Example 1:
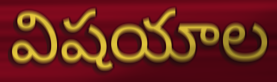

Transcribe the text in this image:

విషయాల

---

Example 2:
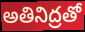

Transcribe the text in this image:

అతినిద్రతో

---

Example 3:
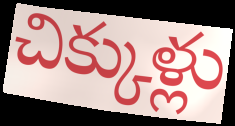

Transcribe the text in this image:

చిక్కుళ్లు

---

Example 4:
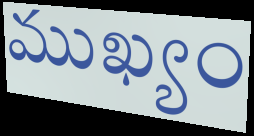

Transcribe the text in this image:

ముఖ్యం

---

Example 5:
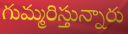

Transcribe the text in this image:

గుమ్మరిస్తున్నారు